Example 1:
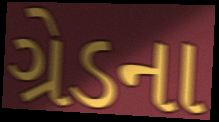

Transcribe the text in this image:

ગ્રેડના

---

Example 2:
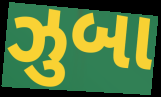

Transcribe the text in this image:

ઝુબા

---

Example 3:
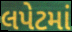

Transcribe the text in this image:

લપેટમાં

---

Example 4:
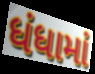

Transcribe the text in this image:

ધંધામાં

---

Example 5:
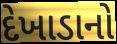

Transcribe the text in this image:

દેખાડાનો